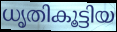
ധൃതികൂട്ടിയ